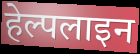
हेल्पलाइन